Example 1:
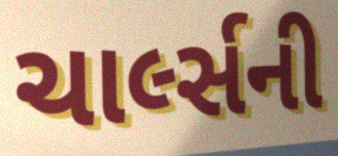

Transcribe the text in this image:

ચાર્લ્સની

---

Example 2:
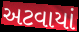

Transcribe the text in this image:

અટવાયાં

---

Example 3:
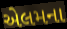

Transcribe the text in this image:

એલમના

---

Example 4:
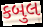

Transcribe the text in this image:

કબુલ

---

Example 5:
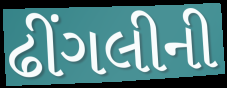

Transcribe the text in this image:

ઢીંગલીની